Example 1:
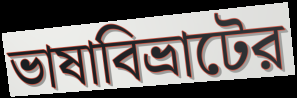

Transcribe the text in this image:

ভাষাবিভ্রাটের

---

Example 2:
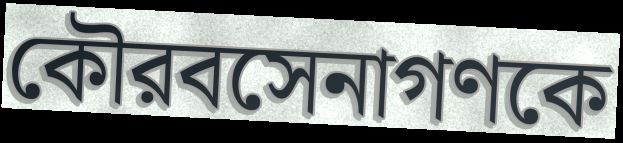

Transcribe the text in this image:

কৌরবসেনাগণকে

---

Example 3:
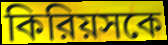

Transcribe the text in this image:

কিরিয়সকে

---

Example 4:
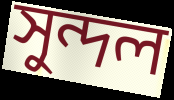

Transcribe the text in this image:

সুন্দল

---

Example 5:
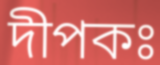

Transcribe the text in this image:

দীপকঃ